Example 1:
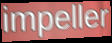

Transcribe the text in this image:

impeller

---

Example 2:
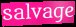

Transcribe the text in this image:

salvage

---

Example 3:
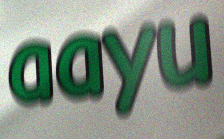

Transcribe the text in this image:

aayu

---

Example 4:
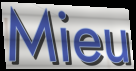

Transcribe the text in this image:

Mieu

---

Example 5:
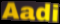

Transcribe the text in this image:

Aadi